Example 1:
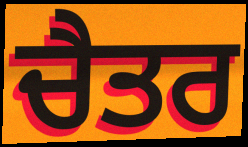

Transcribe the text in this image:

ਚੈਤਰ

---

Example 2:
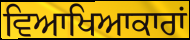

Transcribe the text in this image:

ਵਿਆਖਿਆਕਾਰਾਂ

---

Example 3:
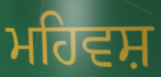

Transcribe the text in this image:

ਮਹਿਵਸ਼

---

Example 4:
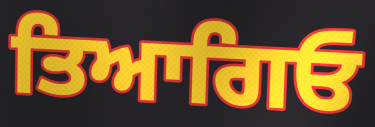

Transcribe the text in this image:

ਤਿਆਗਿਓ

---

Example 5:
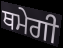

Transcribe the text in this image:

ਥਮੇਗੀ